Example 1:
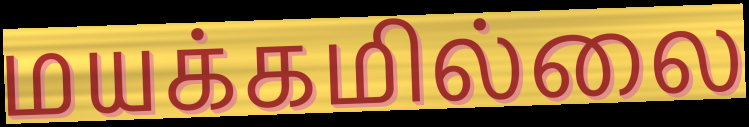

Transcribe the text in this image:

மயக்கமில்லை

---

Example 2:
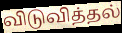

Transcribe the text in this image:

விடுவித்தல்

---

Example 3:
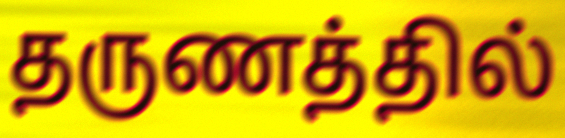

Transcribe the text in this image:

தருணத்தில்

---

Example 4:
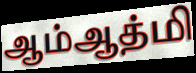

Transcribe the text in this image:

ஆம்ஆத்மி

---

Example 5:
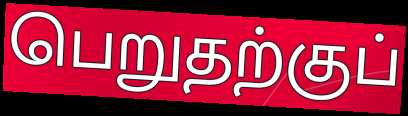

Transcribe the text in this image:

பெறுதற்குப்